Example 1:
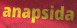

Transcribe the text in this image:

anapsida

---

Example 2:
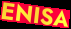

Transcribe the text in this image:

ENISA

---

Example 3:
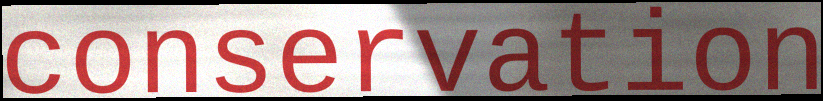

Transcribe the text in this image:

conservation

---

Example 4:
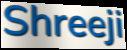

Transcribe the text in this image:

Shreeji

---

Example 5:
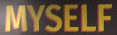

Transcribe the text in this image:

MYSELF